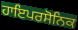
ਹਾਇਪਰਸੋਨਿਕ